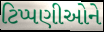
ટિપ્પણીઓને